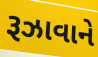
રૂઝાવાને